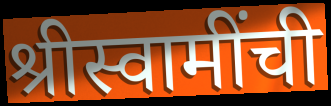
श्रीस्वामींची